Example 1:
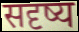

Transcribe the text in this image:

सदृष्य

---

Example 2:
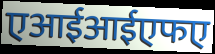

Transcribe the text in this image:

एआईआईएफए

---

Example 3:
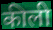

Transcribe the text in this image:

कीली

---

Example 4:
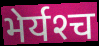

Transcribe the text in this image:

भेर्यश्च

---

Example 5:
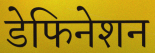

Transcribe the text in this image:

डेफिनेशन